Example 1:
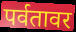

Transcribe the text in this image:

पर्वतावर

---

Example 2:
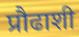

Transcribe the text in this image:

प्रौढाशी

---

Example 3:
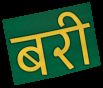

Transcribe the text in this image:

बरी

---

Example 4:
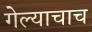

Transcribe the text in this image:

गेल्याचाच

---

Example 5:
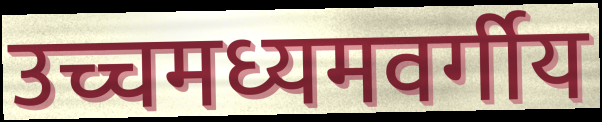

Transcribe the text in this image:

उच्चमध्यमवर्गीय